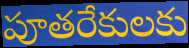
పూతరేకులకు